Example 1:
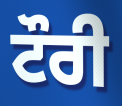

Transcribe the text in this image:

ਟੌਰੀ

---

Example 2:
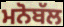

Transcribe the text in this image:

ਮਨੋਬੱਲ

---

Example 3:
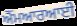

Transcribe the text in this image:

ਐੱਮਆਰਆਈ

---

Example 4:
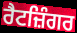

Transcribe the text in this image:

ਰੈਟਜ਼ਿੰਗਰ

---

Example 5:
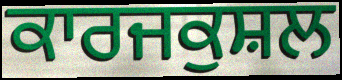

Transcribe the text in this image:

ਕਾਰਜਕੁਸ਼ਲ